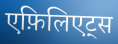
एफ़िलिएट्स